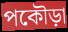
পকৌড়া